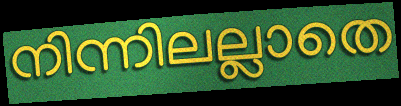
നിന്നിലല്ലാതെ